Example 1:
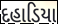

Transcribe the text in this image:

દહાડિયા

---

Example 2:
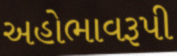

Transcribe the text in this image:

અહોભાવરૂપી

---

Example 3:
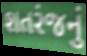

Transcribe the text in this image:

શતરંજનું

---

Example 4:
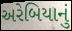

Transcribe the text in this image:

અરેબિયાનું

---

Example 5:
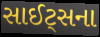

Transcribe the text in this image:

સાઈટ્સના